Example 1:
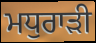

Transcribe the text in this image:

ਮਧੁਰਾੜੀ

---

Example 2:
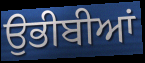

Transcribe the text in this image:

ਉਭੀਬੀਆਂ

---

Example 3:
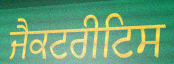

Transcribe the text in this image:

ਜੈਕਟਰੀਟਿਸ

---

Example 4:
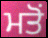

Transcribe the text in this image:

ਮਤੋਂ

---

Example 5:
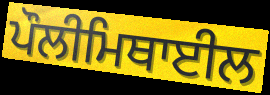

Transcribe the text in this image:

ਪੌਲੀਮਿਥਾਈਲ